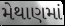
મેથાણમાં